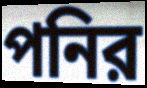
পনির